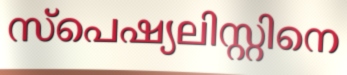
സ്പെഷ്യലിസ്റ്റിനെ